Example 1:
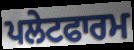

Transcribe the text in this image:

ਪਲੇਟਫਾਰਮ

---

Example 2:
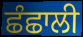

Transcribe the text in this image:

ਛੰਛਾਲੀ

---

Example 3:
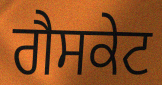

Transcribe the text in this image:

ਗੈਸਕੇਟ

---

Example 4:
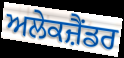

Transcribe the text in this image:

ਅਲੇਕਜ਼ੈਂਡਰ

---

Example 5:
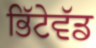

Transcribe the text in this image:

ਭਿੱਟੇਵੱਡ